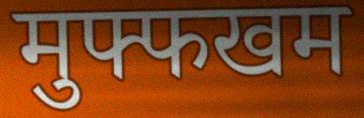
मुफ्फखम